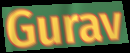
Gurav